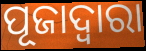
ପୂଜାଦ୍ୱାରା